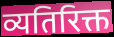
व्यतिरिक्त